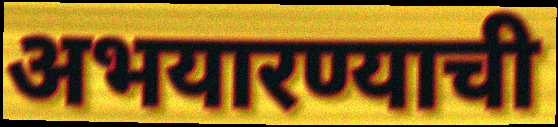
अभयारण्याची